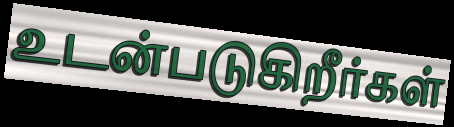
உடன்படுகிறீர்கள்